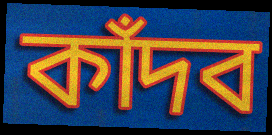
কাঁদব